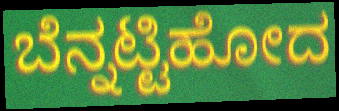
ಬೆನ್ನಟ್ಟಿಹೋದ